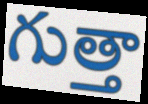
గుత్తా